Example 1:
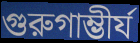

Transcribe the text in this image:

গুরুগাম্ভীর্য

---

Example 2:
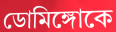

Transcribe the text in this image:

ডোমিঙ্গোকে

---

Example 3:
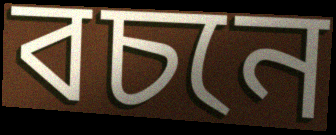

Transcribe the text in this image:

বচনে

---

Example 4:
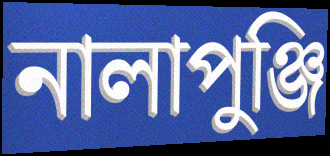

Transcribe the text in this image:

নালাপুঞ্জি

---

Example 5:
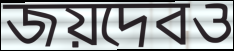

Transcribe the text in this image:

জয়দেবও